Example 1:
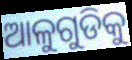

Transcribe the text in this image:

ଆଳୁଗୁଡିକୁ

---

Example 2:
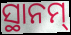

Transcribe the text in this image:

ସ୍ଥାନମ୍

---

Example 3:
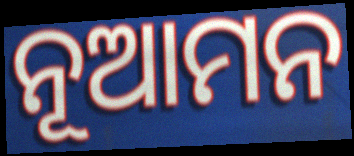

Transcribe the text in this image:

ନୂଆମନ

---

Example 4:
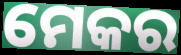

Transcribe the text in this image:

ମେକର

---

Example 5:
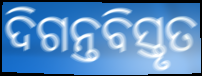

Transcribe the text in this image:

ଦିଗନ୍ତବିସ୍ତୃତ